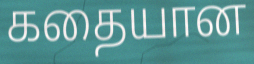
கதையான